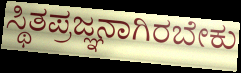
ಸ್ಥಿತಪ್ರಜ್ಞನಾಗಿರಬೇಕು